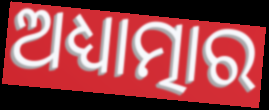
ଅଧ୍ୟାତ୍ମାର